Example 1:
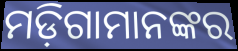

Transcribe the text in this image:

ମଡ଼ିଗାମାନଙ୍କର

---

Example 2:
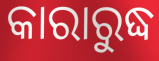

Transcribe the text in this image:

କାରାରୁଦ୍ଧ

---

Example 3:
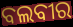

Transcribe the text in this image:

ବଲବୀର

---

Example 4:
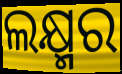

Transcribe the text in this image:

ଲକ୍ଷ୍ମର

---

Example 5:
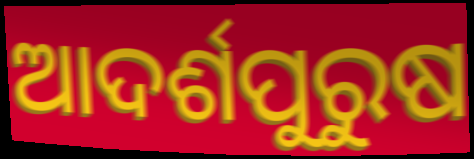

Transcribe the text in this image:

ଆଦର୍ଶପୁରୁଷ